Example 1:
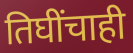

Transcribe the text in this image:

तिघींचाही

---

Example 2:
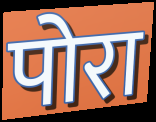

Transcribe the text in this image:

पोरा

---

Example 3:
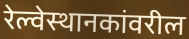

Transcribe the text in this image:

रेल्वेस्थानकांवरील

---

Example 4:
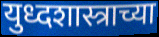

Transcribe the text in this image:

युध्दशास्त्राच्या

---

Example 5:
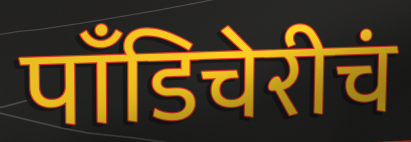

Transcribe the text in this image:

पाँडिचेरीचं